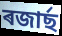
ৰজাৰ্ছ